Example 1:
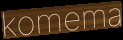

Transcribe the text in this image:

komema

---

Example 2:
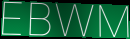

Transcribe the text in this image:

EBWM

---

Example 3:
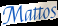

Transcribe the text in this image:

Mattos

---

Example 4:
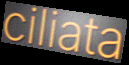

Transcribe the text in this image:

ciliata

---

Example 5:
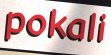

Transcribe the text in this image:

pokali